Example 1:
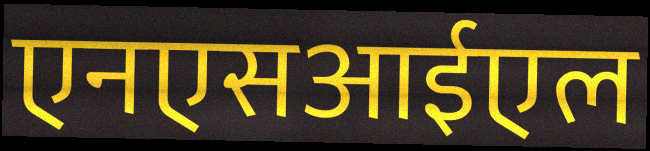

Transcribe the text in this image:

एनएसआईएल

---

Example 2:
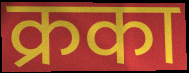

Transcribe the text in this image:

क्रका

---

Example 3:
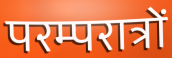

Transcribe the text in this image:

परम्परात्रों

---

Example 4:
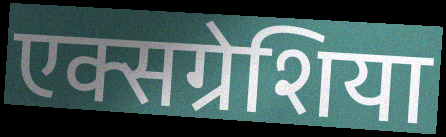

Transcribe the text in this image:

एक्सग्रेशिया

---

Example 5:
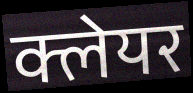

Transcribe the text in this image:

क्लेयर